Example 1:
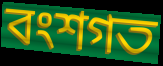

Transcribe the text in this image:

বংশগত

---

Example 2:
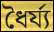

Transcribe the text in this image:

ধৈৰ্য্য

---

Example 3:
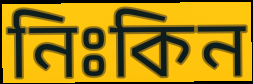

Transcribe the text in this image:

নিঃকিন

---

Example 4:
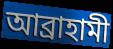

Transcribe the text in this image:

আব্ৰাহামী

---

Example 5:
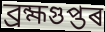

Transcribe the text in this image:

ব্ৰহ্মগুপ্তৰ